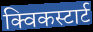
क्विकस्टार्ट